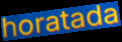
horatada